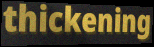
thickening